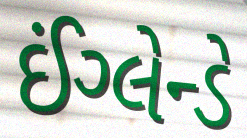
ઈંગ્લેન્ડે